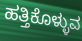
ಹತ್ತಿಕೊಳ್ಳುವ